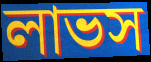
লাভস